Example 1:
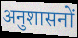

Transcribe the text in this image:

अनुशासनों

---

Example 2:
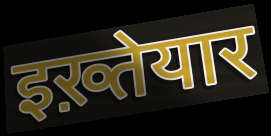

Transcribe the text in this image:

इख़्तेयार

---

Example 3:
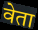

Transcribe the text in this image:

वेता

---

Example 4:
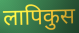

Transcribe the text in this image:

लापिकुस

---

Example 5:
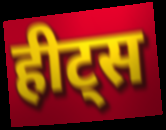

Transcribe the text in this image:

हीट्स